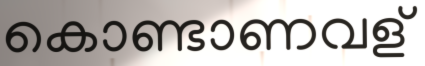
കൊണ്ടാണവള്